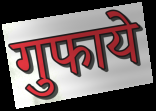
गुफाये